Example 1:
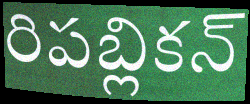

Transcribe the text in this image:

రిపబ్లికన్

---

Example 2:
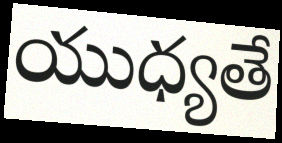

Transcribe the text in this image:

యుధ్యతే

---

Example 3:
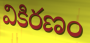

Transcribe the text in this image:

వికిరణం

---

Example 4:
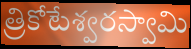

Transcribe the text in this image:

త్రికోటేశ్వరస్వామి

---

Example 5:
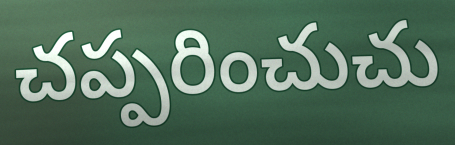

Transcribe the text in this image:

చప్పరించుచు